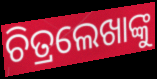
ଚିତ୍ରଲେଖାଙ୍କୁ